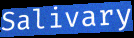
Salivary